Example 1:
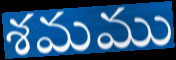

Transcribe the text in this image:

శమము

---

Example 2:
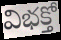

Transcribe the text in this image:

విభక్తో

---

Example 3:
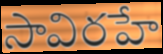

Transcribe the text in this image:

సావిరహే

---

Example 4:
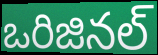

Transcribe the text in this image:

ఒరిజినల్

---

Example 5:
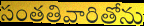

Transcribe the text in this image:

సంతతివారితోను